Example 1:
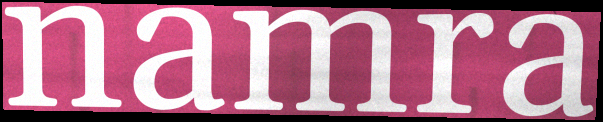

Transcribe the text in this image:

namra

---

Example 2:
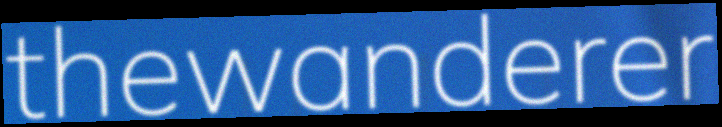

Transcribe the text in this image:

thewanderer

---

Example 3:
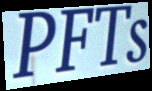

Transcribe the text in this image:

PFTs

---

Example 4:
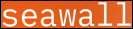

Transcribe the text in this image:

seawall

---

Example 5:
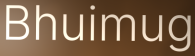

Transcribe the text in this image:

Bhuimug